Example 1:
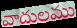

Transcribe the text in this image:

వాదులము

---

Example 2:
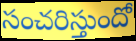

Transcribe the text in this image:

సంచరిస్తుందో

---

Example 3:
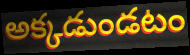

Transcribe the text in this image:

అక్కడుండటం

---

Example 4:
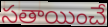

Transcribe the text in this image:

సతాయించే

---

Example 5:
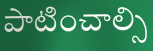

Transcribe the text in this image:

పాటించాల్సి